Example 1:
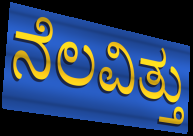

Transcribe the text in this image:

ನೆಲವಿತ್ತು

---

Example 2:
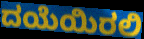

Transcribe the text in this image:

ದಯೆಯಿರಲಿ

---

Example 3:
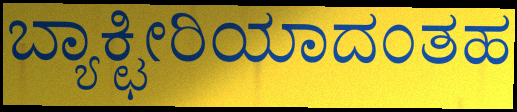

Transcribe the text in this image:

ಬ್ಯಾಕ್ಟೀರಿಯಾದಂತಹ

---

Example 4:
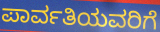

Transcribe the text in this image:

ಪಾರ್ವತಿಯವರಿಗೆ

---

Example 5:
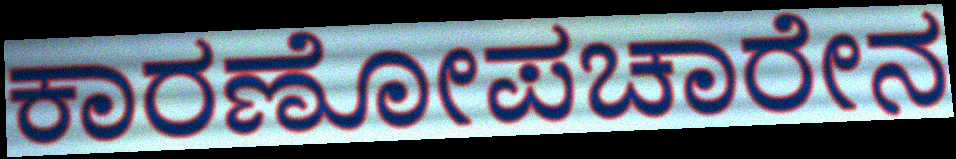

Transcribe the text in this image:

ಕಾರಣೋಪಚಾರೇನ